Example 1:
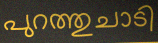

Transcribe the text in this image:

പുറത്തുചാടി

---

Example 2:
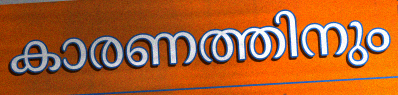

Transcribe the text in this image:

കാരണത്തിനും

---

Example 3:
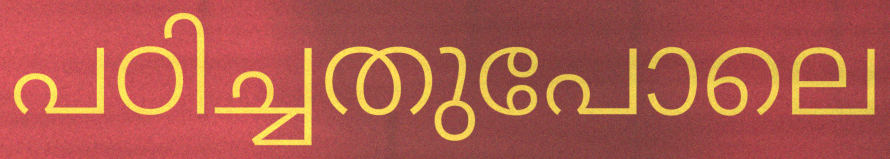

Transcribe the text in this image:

പഠിച്ചതുപോലെ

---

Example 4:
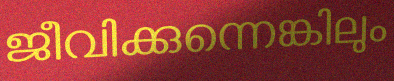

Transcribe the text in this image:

ജീവിക്കുന്നെങ്കിലും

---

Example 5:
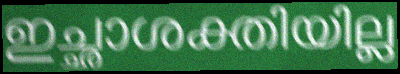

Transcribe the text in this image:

ഇച്ഛാശക്തിയില്ല